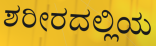
ಶರೀರದಲ್ಲಿಯ